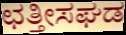
ಛತ್ತೀಸಘಡ